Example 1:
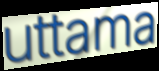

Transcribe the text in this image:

uttama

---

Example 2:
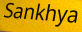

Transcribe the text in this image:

Sankhya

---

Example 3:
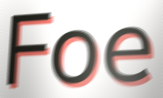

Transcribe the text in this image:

Foe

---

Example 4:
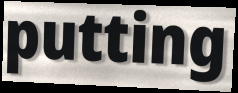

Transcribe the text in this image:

putting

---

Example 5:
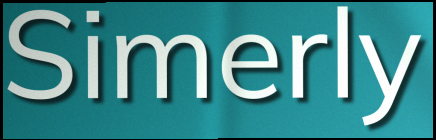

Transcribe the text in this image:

Simerly